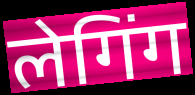
लेगिंग